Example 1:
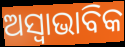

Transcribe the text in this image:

ଅସ୍ଵାଭାବିକ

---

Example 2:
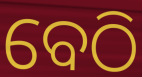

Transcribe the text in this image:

ବେଠି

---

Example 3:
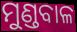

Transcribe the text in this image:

ମୁଣ୍ଡବାଳ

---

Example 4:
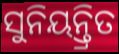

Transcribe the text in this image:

ସୁନିୟନ୍ତ୍ରିତ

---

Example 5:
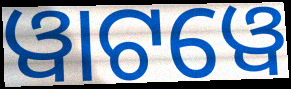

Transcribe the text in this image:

ୱାଟୱେ